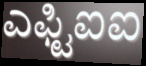
ಎಫ್ಟಿಐಐ